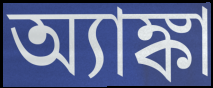
অ্যাঙ্কা